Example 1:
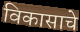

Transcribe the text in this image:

विकासाचे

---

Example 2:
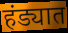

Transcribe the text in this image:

हंड्यात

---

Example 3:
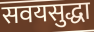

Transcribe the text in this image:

सवयसुद्धा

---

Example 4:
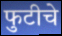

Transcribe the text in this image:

फुटीचे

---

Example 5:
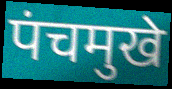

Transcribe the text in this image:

पंचमुखे